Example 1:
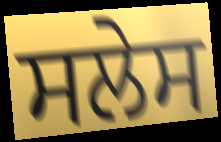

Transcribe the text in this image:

ਸਲੇਸ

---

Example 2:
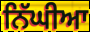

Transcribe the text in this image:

ਨਿੱਘੀਆ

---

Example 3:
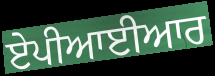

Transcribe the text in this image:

ਏਪੀਆਈਆਰ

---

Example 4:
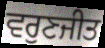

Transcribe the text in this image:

ਵਰੁਣਜੀਤ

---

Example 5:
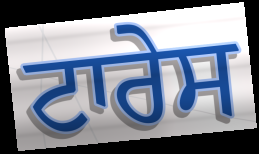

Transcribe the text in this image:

ਟਾਰੇਸ